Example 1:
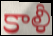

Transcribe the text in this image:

కాళీ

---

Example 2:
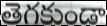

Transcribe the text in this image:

తెగకుండా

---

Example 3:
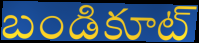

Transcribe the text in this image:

బండికూట్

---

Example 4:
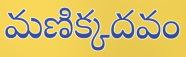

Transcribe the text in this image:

మణిక్కదవం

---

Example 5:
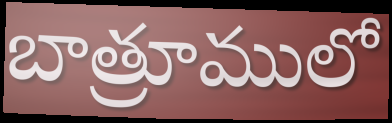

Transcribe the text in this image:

బాత్రూములో